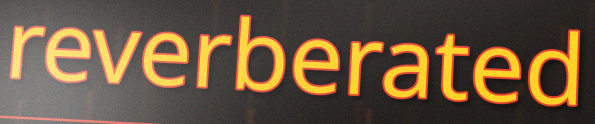
reverberated